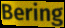
Bering